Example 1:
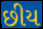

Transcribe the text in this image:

છીય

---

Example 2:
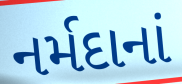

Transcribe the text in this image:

નર્મદાનાં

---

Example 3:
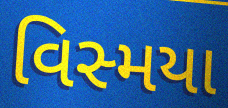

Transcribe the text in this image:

વિસ્મયા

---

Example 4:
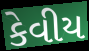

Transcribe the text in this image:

કેવીય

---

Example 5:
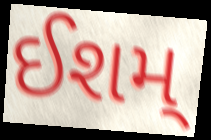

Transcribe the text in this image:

ઈશમ્